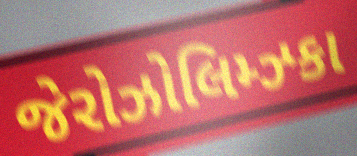
જેરોઝોલિમ્ઝ્કા